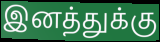
இனத்துக்கு